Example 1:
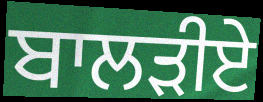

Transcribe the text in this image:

ਬਾਲੜੀਏ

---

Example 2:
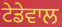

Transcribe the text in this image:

ਟੇਡੇਵਾਲ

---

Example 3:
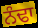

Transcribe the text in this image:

ਨੰਢਾ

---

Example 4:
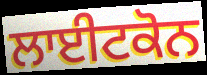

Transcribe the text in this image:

ਲਾਈਟਕੋਨ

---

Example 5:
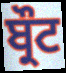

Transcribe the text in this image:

ਬ੍ਰੌਟ